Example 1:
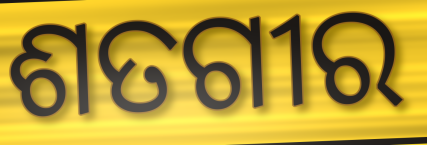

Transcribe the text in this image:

ଶତଗୀର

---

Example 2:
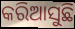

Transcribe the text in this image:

କରିଆସୁଛି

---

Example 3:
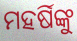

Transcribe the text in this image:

ମହର୍ଷିଙ୍କୁ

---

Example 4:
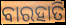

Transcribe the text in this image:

ବାରହାତି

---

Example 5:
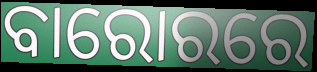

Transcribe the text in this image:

ବାରୋରରେ